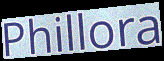
Phillora